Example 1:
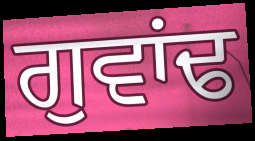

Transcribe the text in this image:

ਗੁਵਾਂਢ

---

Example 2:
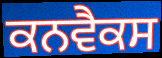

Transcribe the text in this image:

ਕਨਵੈਕਸ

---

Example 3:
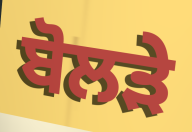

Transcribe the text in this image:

ਬੋਲੜੇ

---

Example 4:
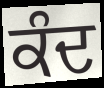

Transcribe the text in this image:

ਕੰਦ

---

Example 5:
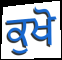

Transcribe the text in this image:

ਕੁਖੋ